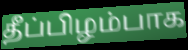
தீப்பிழம்பாக